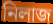
নিলাজ